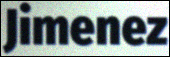
Jimenez